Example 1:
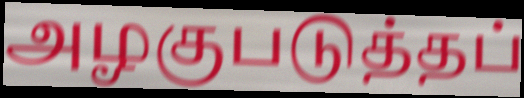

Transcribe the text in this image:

அழகுபடுத்தப்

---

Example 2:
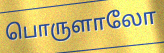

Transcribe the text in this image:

பொருளாலோ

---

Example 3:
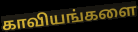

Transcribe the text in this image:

காவியங்களை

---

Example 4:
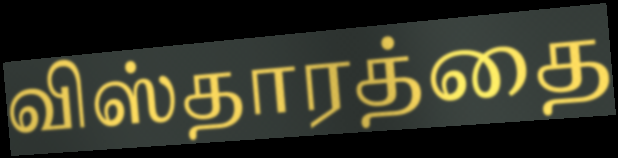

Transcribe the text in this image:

விஸ்தாரத்தை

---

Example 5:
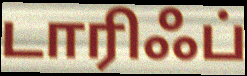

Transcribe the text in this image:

டாரிஃப்